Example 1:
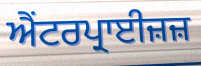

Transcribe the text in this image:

ਐਂਟਰਪ੍ਰਾਈਜ਼ਜ਼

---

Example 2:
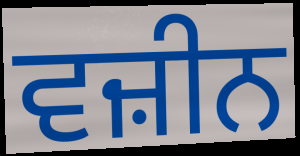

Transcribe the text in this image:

ਵਜ਼ੀਨ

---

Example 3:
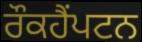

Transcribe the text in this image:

ਰੌਕਹੈਂਪਟਨ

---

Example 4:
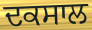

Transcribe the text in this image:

ਦਕਸਾਲ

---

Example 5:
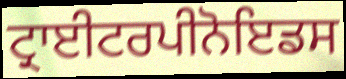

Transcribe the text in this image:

ਟ੍ਰਾਈਟਰਪੀਨੋਇਡਸ